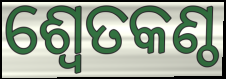
ଶ୍ୱେତକଣ୍ଠ